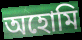
অহোমি